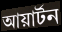
আয়ার্টন